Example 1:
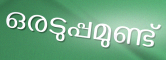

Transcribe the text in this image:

ഒരടുപ്പമുണ്ട്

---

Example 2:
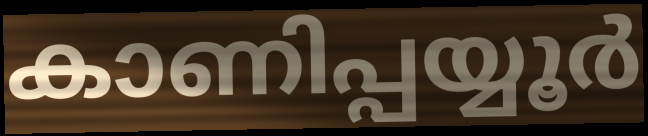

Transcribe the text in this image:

കാണിപ്പയ്യൂർ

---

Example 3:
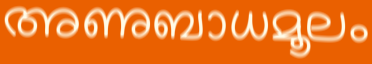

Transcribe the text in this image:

അണുബാധമൂലം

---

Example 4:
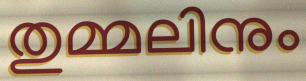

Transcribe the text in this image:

തുമ്മലിനും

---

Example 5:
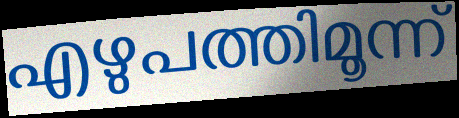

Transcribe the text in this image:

എഴുപത്തിമൂന്ന്